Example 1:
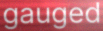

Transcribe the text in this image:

gauged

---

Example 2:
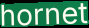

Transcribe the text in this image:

hornet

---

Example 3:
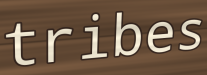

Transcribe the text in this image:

tribes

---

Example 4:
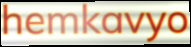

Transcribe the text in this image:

hemkavyo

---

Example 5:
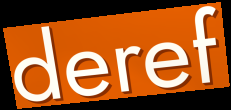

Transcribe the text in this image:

deref